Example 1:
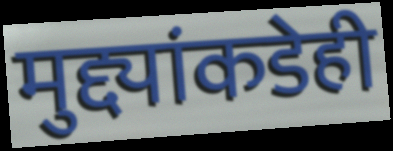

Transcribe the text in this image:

मुद्द्यांकडेही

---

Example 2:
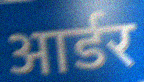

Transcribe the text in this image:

आर्डर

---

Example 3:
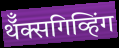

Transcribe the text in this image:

थॅँक्सगिव्हिंग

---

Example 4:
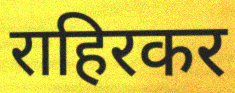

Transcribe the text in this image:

राहिरकर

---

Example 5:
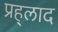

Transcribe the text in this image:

प्रह्‌लाद